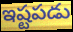
ఇష్టపడు